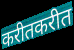
करीतकरीत